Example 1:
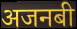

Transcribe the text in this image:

अजनबी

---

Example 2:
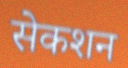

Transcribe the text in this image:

सेकशन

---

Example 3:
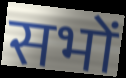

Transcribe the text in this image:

सभों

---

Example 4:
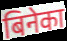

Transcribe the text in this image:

बिनेका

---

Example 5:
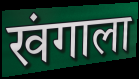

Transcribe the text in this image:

खंगाला